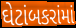
ઘેટાંબકરાંમાં